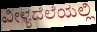
ವೀಳ್ಯದೆಲೆಯಲ್ಲಿ